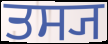
ਤਸ੍ਯ